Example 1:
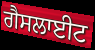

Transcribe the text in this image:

ਗੈਸਲਾਈਟ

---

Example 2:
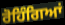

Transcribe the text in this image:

ਰੋਹਿੰਗਿਆਂ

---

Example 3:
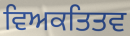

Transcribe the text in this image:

ਵਿਅਕਤਿਤਵ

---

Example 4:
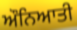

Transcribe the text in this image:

ਔਨਿਆਤੀ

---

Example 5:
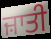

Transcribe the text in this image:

ਜ਼ਾਤੀ